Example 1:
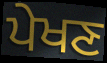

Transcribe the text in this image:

ਪੇਖਣ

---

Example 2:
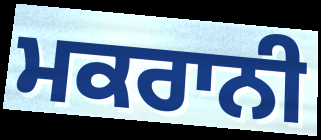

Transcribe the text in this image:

ਮਕਰਾਨੀ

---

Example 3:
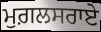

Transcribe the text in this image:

ਮੁਗ਼ਲਸਰਾਏ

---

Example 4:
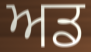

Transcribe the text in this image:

ਅਡ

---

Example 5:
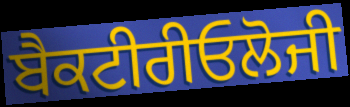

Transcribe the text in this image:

ਬੈਕਟੀਰੀਓਲੋਜੀ